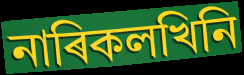
নাৰিকলখিনি